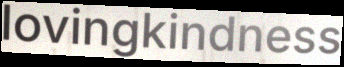
lovingkindness